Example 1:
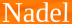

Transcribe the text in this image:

Nadel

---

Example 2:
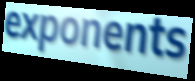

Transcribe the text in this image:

exponents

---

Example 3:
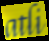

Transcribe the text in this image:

atli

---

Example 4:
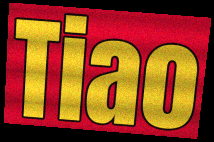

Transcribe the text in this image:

Tiao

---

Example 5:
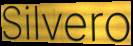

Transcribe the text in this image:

Silvero